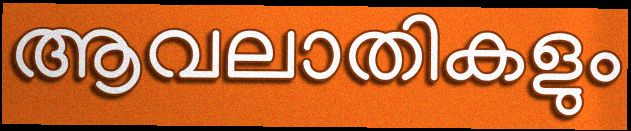
ആവലാതികളും